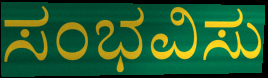
ಸಂಭವಿಸು